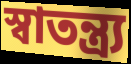
স্বাতন্ত্র্য